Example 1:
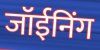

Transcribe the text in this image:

जॉईनिंग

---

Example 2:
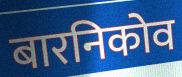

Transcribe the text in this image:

बारनिकोव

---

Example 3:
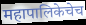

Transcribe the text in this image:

महापालिकेचेच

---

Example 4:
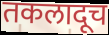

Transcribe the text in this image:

तकलादूच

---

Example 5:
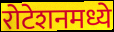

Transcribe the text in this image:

रोटेशनमध्ये